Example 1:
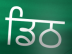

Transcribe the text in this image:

ਡਿਠ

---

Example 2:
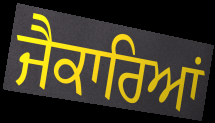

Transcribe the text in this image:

ਜੈਕਾਰਿਆਂ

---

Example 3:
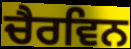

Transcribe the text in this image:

ਚੈਰਵਿਨ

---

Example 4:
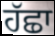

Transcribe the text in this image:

ਹੱਛਾ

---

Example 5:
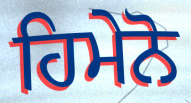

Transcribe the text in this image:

ਹਿਮੇਨੋ